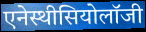
एनेस्थीसियोलॉजी